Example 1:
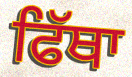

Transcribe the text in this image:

ਫਿੱਥਾ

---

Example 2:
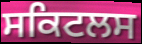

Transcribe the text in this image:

ਸਕਿਟਲਸ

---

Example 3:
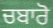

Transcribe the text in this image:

ਚਬਾਰੋ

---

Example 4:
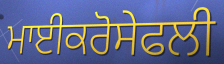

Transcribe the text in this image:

ਮਾਈਕਰੋਸੇਫਲੀ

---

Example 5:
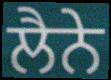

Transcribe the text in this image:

ਲੈਨੇ